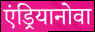
एंड्रियानोवा